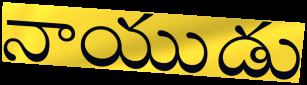
నాయుడు